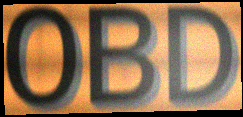
OBD